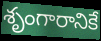
శృంగారానికే